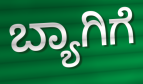
ಬ್ಯಾಗಿಗೆ